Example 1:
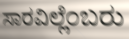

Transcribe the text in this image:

ಸಾರವಿಲ್ಲೆಂಬರು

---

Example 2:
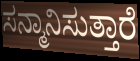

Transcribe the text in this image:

ಸನ್ಮಾನಿಸುತ್ತಾರೆ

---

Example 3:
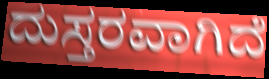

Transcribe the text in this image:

ದುಸ್ತರವಾಗಿದೆ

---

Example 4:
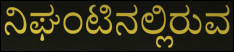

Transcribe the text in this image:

ನಿಘಂಟಿನಲ್ಲಿರುವ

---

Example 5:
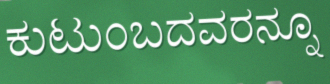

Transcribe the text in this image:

ಕುಟುಂಬದವರನ್ನೂ